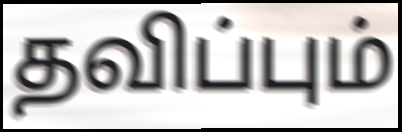
தவிப்பும்